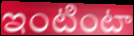
ఇంటింటా